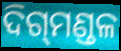
ଦିଗ୍‌ମଣ୍ଡଳ